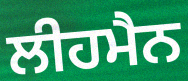
ਲੀਹਮੈਨ